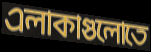
এলাকাগুলোতে